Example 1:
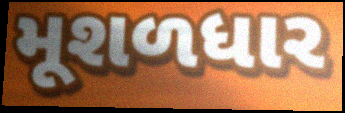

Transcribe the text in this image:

મૂશળધાર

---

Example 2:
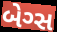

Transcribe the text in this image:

બેગ્સ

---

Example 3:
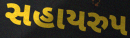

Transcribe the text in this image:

સહાયરુપ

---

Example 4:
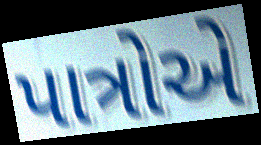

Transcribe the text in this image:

પાત્રોએ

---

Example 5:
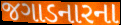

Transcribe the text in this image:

જગાડનારના